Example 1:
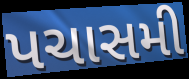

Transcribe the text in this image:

પચાસમી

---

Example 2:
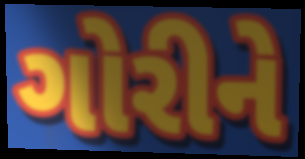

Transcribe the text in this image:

ગોરીને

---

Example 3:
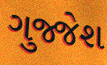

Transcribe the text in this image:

ગુજ્જેશ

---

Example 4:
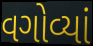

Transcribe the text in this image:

વગોવ્યાં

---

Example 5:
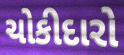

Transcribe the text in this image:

ચોકીદારો